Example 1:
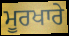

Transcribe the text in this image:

ਮੂਰਖਾਰੇ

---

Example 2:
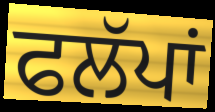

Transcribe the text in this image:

ਫਲੱਪਾਂ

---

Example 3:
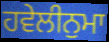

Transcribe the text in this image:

ਹਵੇਲੀਨੁਮਾ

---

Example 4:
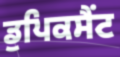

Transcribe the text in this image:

ਡੁਪਿਕਸੈਂਟ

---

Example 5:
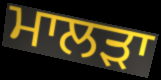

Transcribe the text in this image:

ਮਾਲੜਾ